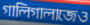
গালিগালাজেও